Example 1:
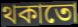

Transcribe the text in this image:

থকাতো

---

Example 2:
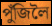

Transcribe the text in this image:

পুঁজিলৈ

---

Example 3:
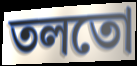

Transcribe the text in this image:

তলতো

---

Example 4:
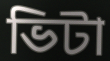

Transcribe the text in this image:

ভিটা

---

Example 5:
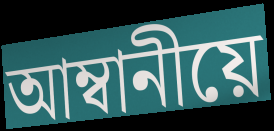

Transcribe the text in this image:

আম্বানীয়ে